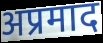
अप्रमाद